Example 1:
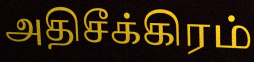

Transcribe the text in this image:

அதிசீக்கிரம்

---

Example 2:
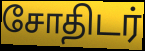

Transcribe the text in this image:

சோதிடர்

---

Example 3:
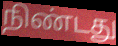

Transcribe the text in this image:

நிண்டது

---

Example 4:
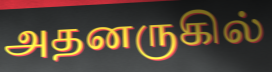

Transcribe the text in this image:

அதனருகில்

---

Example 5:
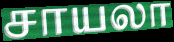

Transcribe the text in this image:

சாயலா